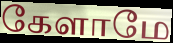
கேளாமே